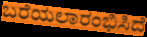
ಬರೆಯಲಾರಂಭಿಸಿದೆ